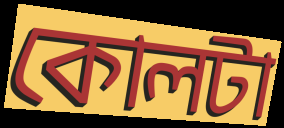
কোলটা